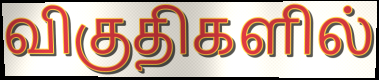
விகுதிகளில்